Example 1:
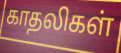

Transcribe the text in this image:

காதலிகள்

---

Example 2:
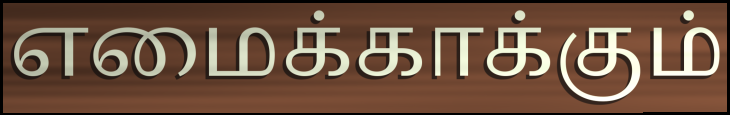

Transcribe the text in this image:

எமைக்காக்கும்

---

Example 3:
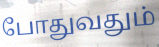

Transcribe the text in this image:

போதுவதும்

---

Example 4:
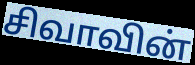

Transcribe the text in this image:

சிவாவின்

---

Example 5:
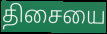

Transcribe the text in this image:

திசையை